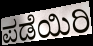
ಪಡೆಯಿರಿ